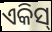
ଏକିସ୍